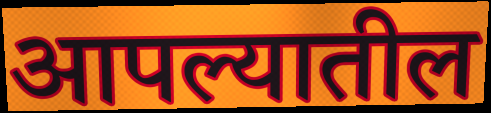
आपल्यातील